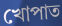
খোপাত